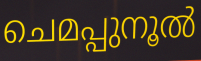
ചെമപ്പുനൂൽ